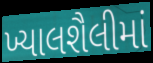
ખ્યાલશૈલીમાં